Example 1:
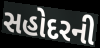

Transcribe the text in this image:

સહોદરની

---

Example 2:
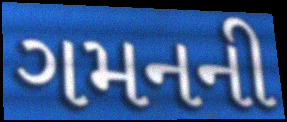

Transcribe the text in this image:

ગમનની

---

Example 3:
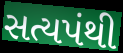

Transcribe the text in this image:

સત્યપંથી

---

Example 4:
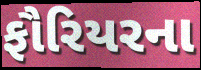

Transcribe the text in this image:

ફૌરિયરના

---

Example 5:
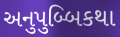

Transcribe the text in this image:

અનુપુબ્બિકથા